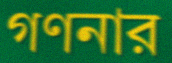
গণনার